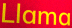
Llama